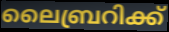
ലൈബ്രറിക്ക്